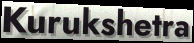
Kurukshetra